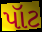
પૉટ